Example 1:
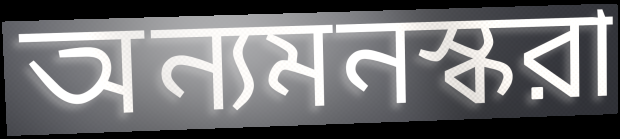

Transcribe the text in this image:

অন্যমনস্করা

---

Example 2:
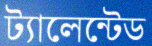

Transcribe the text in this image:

ট্যালেন্টেড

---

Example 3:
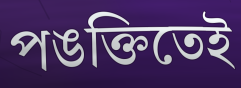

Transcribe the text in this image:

পঙক্তিতেই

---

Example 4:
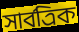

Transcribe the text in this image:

সার্বত্রিক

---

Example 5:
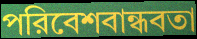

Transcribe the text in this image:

পরিবেশবান্ধবতা